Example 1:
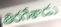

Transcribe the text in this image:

తిరగేశాడు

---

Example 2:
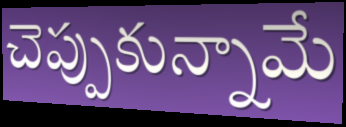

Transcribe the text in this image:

చెప్పుకున్నామే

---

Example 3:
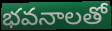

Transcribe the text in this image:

భవనాలతో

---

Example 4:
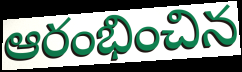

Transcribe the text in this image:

ఆరంభించిన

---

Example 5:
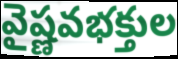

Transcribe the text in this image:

వైష్ణవభక్తుల